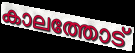
കാലത്തോട്